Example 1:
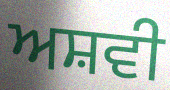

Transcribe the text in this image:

ਅਸ਼ਵੀ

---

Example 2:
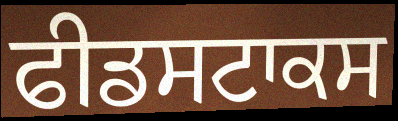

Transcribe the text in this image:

ਫੀਡਸਟਾਕਸ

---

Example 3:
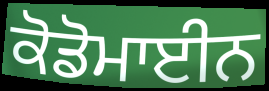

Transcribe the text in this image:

ਕੋਡੋਮਾਈਨ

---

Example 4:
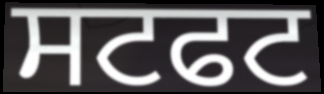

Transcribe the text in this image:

ਸਟਫਟ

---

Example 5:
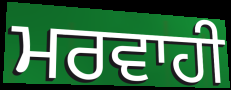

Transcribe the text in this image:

ਮਰਵਾਹੀ